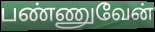
பண்ணுவேன்